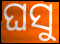
ଘସୁ